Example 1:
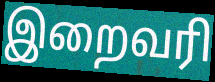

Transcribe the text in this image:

இறைவரி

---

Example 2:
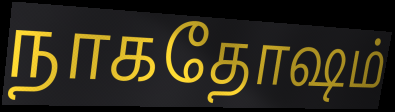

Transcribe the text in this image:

நாகதோஷம்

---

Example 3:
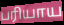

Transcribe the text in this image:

பரியாய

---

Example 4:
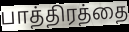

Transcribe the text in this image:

பாத்திரத்தை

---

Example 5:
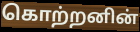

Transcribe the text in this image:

கொற்றனின்